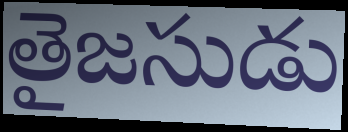
తైజసుడు